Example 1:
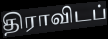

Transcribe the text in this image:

திராவிடப்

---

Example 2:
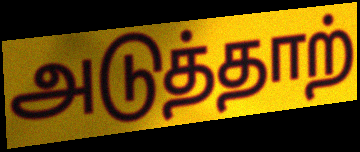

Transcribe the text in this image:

அடுத்தாற்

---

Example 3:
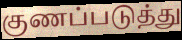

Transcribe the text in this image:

குணப்படுத்து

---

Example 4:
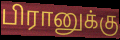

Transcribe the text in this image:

பிரானுக்கு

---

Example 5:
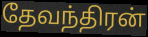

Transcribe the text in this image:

தேவந்திரன்